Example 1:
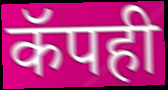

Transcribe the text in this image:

कॅपही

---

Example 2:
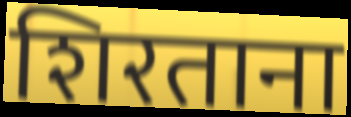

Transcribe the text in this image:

शिरताना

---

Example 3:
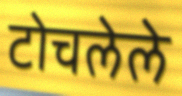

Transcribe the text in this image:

टोचलेले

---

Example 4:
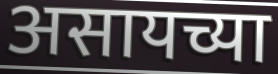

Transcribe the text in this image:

असायच्या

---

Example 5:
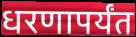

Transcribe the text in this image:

धरणापर्यंत